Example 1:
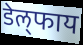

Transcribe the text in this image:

डेल्फाय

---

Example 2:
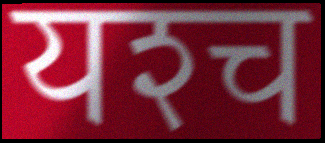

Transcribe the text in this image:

यश्च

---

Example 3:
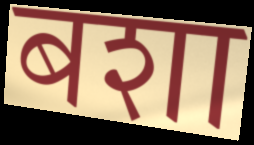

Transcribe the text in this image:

बशा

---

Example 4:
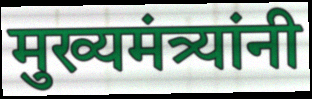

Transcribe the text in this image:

मुख्यमंत्र्यांनी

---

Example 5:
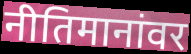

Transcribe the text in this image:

नीतिमानांवर